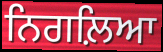
ਨਿਗਲ਼ਿਆ